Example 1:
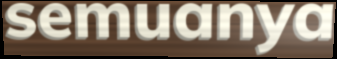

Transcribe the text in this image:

semuanya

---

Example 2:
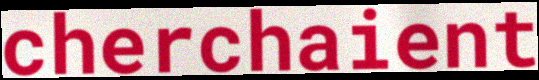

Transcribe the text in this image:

cherchaient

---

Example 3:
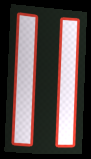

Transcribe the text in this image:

Il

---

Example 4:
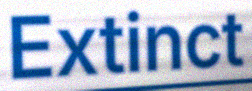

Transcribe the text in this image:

Extinct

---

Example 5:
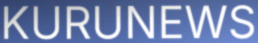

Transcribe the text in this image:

KURUNEWS